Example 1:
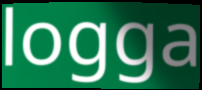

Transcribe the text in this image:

logga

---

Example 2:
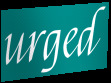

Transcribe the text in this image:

urged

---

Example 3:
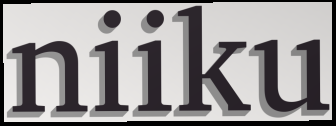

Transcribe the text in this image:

niiku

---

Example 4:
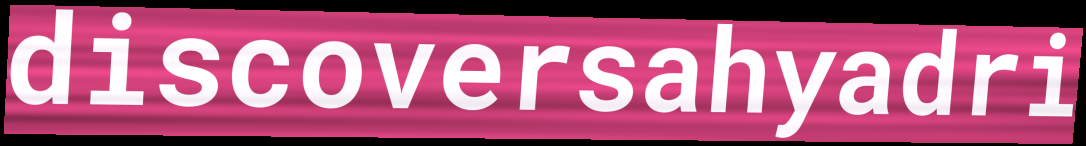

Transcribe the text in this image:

discoversahyadri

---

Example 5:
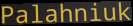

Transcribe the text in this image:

Palahniuk